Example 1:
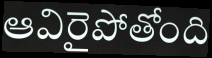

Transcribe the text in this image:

ఆవిరైపోతోంది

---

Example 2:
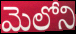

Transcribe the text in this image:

మెలోని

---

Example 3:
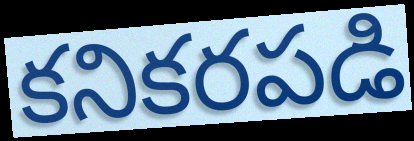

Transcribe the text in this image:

కనికరపడి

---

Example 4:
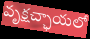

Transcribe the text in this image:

వృక్షచ్ఛాయలో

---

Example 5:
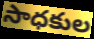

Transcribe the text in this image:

సాధకుల